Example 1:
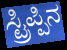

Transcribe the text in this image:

ಸ್ಟ್ರಿಪ್ಪಿನ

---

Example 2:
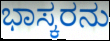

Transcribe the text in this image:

ಭಾಸ್ಕರನು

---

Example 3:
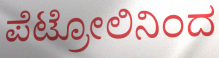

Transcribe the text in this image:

ಪೆಟ್ರೋಲಿನಿಂದ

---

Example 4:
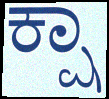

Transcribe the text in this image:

ಕ್ಷಾ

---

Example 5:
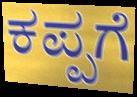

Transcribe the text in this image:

ಕಪ್ಪಗೆ